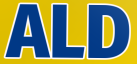
ALD